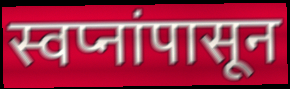
स्वप्नांपासून